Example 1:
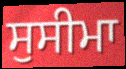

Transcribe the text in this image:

ਸੁਸੀਮਾ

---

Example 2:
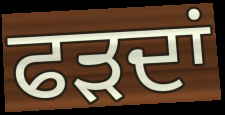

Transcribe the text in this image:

ਫੜਦਾਂ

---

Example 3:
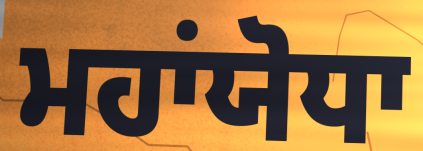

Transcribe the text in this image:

ਮਹਾਂਯੋਧਾ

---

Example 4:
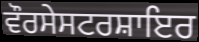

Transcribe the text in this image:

ਵੌਰਸੇਸਟਰਸ਼ਾਇਰ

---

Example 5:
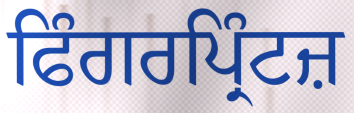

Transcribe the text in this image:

ਫਿੰਗਰਪ੍ਰਿੰਟਜ਼